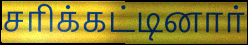
சரிக்கட்டினார்